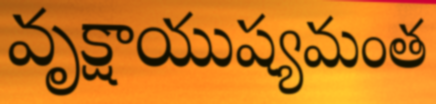
వృక్షాయుష్యమంత